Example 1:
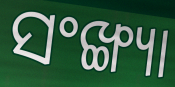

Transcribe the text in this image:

ସଂଙ୍ଖ୍ଯା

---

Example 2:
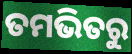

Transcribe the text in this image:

ତମଭିତରୁ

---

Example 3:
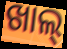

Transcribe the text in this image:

ଖାଲ୍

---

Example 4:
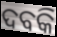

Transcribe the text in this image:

ଦବକି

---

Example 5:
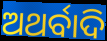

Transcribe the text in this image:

ଅଥର୍ବାଦି